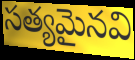
సత్యమైనవి